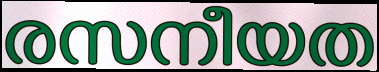
രസനീയത